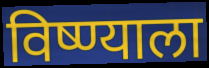
विष्ण्याला